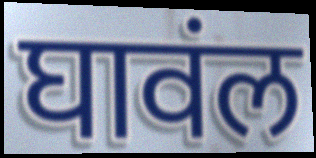
घावंल